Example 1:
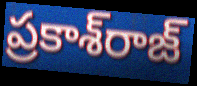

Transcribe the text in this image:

ప్రకాశ్‌రాజ్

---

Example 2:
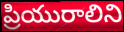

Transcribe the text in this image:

ప్రియురాలిని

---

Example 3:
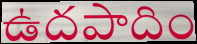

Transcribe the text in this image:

ఉదపాదిం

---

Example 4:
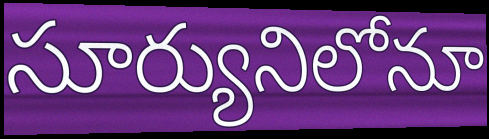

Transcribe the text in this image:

సూర్యునిలోనూ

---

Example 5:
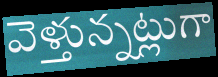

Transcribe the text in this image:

వెళ్తున్నట్లుగా